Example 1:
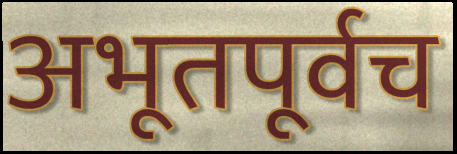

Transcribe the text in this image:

अभूतपूर्वच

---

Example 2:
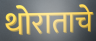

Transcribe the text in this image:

थोराताचे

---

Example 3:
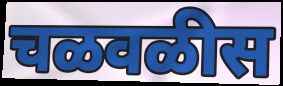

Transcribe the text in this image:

चळवळीस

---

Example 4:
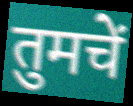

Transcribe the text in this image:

तुमचें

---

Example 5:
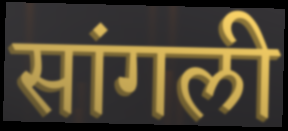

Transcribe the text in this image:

सांगली